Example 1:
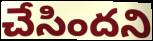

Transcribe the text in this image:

చేసిందని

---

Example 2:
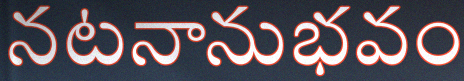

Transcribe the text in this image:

నటనానుభవం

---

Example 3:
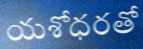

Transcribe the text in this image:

యశోధరతో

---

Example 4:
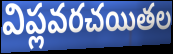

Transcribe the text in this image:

విప్లవరచయితల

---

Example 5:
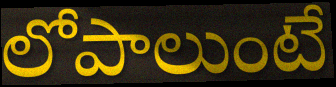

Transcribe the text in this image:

లోపాలుంటే